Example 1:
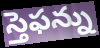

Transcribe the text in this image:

స్తెఫన్ను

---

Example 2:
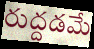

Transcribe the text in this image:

రుద్దడమే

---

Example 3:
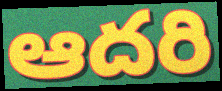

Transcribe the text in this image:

ఆదరి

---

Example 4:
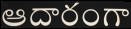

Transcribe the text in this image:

ఆదారంగా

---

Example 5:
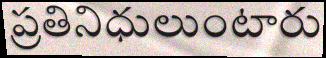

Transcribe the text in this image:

ప్రతినిధులుంటారు